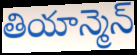
తియాన్మెన్